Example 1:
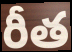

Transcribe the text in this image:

రీత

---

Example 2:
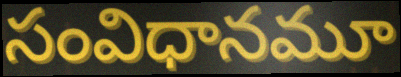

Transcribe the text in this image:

సంవిధానమూ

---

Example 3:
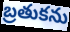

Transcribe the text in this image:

బ్రతుకను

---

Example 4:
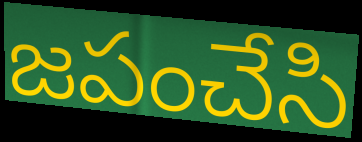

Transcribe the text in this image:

జపంచేసి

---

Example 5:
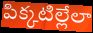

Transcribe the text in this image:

పిక్కటిల్లేలా